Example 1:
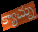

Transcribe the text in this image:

క్యాచ్ను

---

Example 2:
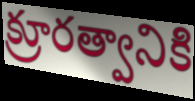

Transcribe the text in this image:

క్రూరత్వానికి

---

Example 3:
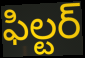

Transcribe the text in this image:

ఫిల్టర్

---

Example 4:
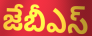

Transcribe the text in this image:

జేబీఎస్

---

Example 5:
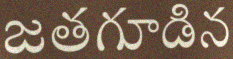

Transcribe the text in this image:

జతగూడిన